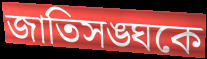
জাতিসঙ্ঘকে